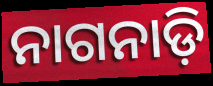
ନାଗନାଡ଼ି